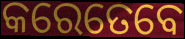
କରେତେବେ